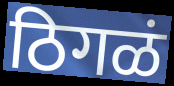
ठिगळं